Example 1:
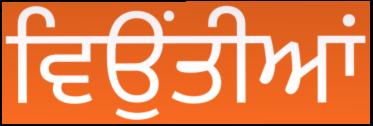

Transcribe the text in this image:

ਵਿਉਂਤੀਆਂ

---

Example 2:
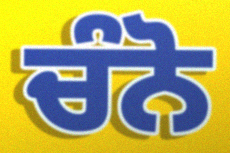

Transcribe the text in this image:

ਚੰਨੋ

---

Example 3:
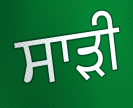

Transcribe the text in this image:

ਸਾੜੀ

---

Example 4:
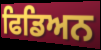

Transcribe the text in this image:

ਫਿਡਿਅਨ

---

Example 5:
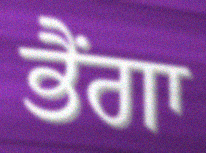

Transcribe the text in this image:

ਭੈਂਗਾ